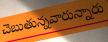
చెబుతున్నవారున్నారు